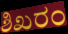
ಶಿಖರಂ